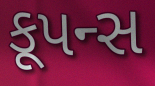
કૂપન્સ